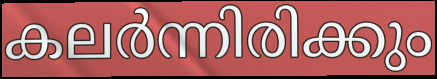
കലർന്നിരിക്കും